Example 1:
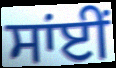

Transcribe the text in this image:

ਸਾਂਈਂ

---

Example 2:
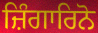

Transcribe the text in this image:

ਜ਼ਿੰਗਾਰਿਨੋ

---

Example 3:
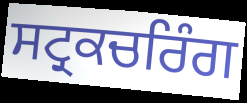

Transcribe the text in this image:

ਸਟ੍ਰਕਚਰਿੰਗ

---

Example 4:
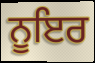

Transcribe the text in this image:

ਨੂਇਰ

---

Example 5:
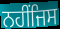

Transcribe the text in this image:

ਨਹੀਂਜਿਸ